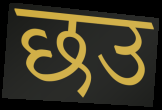
छउ